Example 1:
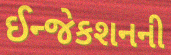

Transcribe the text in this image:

ઈન્જેકશનની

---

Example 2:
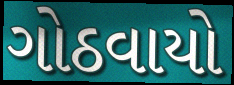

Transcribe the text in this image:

ગોઠવાયો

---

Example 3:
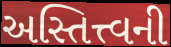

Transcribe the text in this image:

અસ્તિત્ત્વની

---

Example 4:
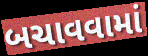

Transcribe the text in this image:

બચાવવામાં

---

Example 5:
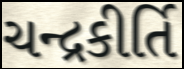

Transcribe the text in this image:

ચન્દ્રકીર્તિ